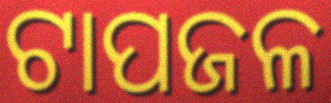
ଟାପଜଳ